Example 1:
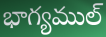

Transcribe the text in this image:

భాగ్యముల్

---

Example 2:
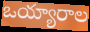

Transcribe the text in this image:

ఒయ్యారాల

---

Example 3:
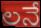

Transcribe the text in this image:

లనే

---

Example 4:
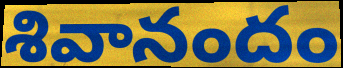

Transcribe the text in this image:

శివానందం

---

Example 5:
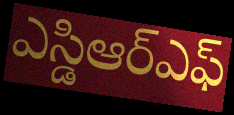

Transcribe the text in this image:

ఎస్డిఆర్ఎఫ్